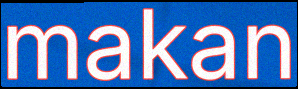
makan